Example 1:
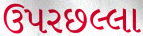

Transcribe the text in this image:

ઉપરછલ્લા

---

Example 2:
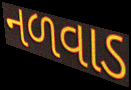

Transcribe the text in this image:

નળવાડ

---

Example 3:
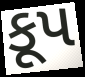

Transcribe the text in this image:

કૂપ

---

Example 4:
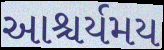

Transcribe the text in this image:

આશ્ચર્યમય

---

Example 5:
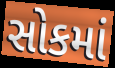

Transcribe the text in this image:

સોકમાં